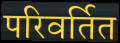
परिवर्तित